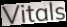
Vitals